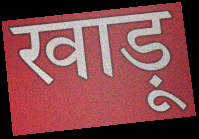
खाड़ू